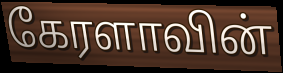
கேரளாவின்